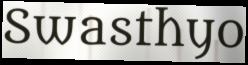
Swasthyo